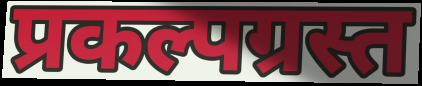
प्रकल्पग्रस्त